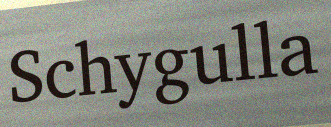
Schygulla